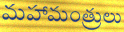
మహామంత్రులు